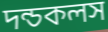
দন্ডকলস